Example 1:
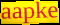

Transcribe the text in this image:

aapke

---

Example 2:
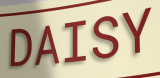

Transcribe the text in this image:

DAISY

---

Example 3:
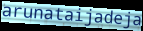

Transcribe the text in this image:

arunataijadeja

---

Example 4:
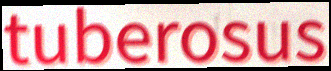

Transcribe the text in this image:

tuberosus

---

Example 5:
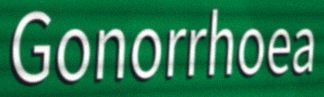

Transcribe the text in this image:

Gonorrhoea